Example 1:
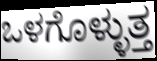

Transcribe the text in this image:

ಒಳಗೊಳ್ಳುತ್ತ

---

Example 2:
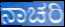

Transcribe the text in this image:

ನಾಚರಿ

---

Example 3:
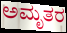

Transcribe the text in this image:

ಅಮೃತರ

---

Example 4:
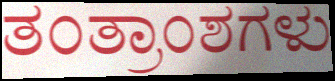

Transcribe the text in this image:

ತಂತ್ರಾಂಶಗಳು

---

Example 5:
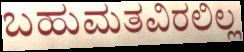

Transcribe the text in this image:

ಬಹುಮತವಿರಲಿಲ್ಲ